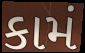
કામં